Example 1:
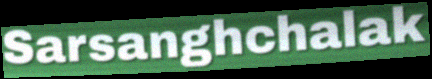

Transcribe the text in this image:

Sarsanghchalak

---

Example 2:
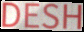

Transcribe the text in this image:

DESH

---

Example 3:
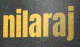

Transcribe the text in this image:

nilaraj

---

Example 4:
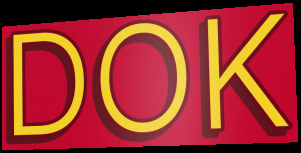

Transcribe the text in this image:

DOK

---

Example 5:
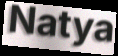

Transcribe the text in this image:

Natya